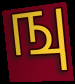
ஙு